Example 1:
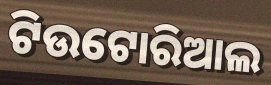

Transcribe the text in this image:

ଟିଉଟୋରିଆଲ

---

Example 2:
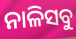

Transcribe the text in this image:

ନାଳିସବୁ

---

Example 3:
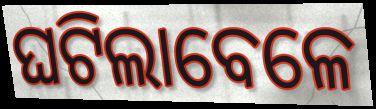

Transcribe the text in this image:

ଘଟିଲାବେଳେ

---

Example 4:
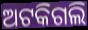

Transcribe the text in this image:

ଅଟକିଗଲି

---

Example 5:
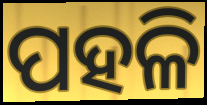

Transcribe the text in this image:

ପହଳି